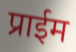
प्राईम